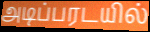
அடிப்பரடயில்